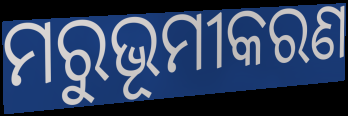
ମରୁଭୂମୀକରଣ